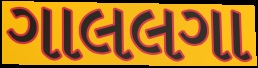
ગાલલગા